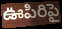
ఊపిరిపై